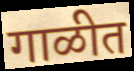
गाळीत